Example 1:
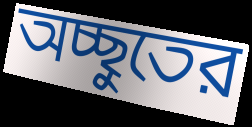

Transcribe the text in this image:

অচ্ছুতের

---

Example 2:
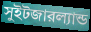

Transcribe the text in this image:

সুইটজারল্যান্ড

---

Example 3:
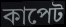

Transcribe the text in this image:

কাপেট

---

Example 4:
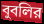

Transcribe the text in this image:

বুবলির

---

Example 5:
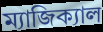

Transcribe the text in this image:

ম্যাজিক্যাল